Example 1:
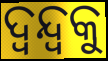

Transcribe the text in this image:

ଦ୍ଵନ୍ଦ୍ଵକୁ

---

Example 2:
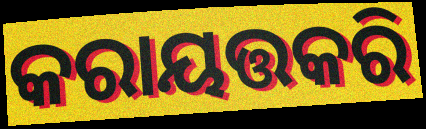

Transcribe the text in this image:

କରାୟତ୍ତକରି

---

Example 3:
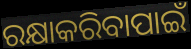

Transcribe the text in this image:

ରକ୍ଷାକରିବାପାଇଁ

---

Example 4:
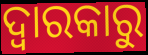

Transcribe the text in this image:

ଦ୍ଵାରକାରୁ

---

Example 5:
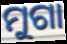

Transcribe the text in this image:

ମୁଗା